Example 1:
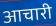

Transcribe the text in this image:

आचारी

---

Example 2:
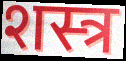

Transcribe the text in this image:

शस्त्र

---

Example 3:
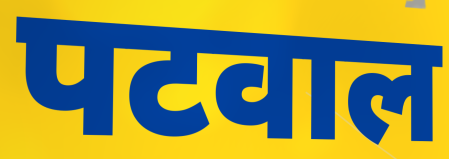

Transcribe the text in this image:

पटवाल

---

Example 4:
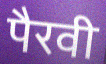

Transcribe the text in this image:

पैरवी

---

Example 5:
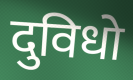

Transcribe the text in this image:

दुविधो